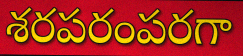
శరపరంపరగా